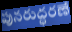
పునరుద్ధరణే